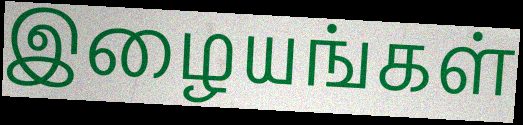
இழையங்கள்